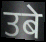
उबे